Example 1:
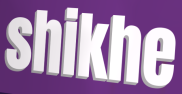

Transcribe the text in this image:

shikhe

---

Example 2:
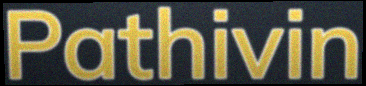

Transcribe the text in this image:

Pathivin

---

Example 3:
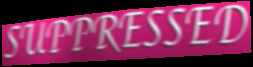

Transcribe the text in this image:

SUPPRESSED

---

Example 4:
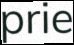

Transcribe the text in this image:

prie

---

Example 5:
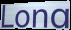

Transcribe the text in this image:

Lona